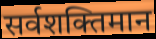
सर्वशक्तिमान